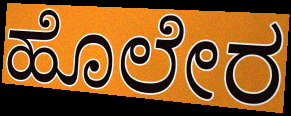
ಹೊಲೇರ